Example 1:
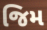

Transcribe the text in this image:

જિમ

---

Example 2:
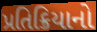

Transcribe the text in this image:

પ્રતિક્રિયાનો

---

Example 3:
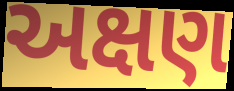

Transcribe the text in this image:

અક્ષણ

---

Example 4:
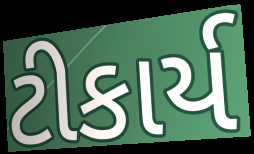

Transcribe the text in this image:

ટીકાર્ય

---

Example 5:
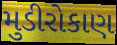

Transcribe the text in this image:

મુડીરોકાણ